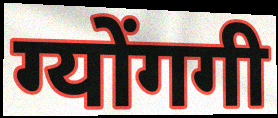
ग्योंगगी